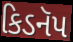
કિડનૅપ